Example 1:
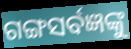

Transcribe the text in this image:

ଗଙ୍ଗସର୍ବଜ୍ଞଙ୍କୁ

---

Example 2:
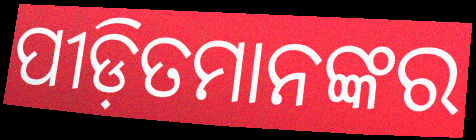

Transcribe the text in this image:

ପୀଡ଼ିତମାନଙ୍କର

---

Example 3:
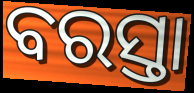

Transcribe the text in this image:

ବରସ୍ତା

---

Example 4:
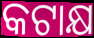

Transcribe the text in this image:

କଟାକ୍ଷ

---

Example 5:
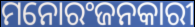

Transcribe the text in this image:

ମନୋରଂଜନକାରୀ